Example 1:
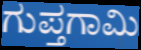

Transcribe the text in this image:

ಗುಪ್ತಗಾಮಿ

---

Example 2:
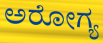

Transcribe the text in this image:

ಅರೋಗ್ಯ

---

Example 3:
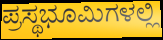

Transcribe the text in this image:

ಪ್ರಸ್ಥಭೂಮಿಗಳಲ್ಲಿ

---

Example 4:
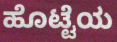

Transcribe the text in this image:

ಹೊಟ್ಟೆಯ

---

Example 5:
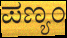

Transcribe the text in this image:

ಪಣ್ಯಂ